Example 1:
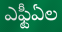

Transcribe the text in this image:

ఎఫ్టీఏల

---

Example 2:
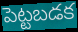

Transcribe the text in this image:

పెట్టబడక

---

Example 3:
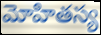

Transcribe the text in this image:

మోహితస్య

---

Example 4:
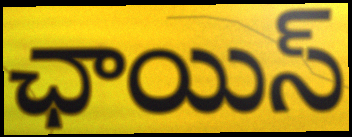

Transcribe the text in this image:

ఛాయిస్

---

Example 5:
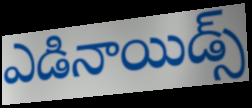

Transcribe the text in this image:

ఎడినాయిడ్స్